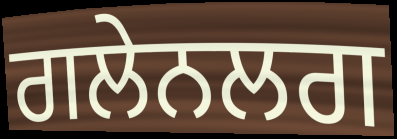
ਗਲੇਨਲਗ